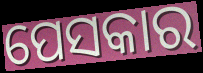
ପେସକାର